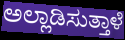
ಅಲ್ಲಾಡಿಸುತ್ತಾಳೆ